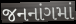
જનનાંગમાં